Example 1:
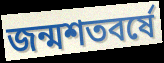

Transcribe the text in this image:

জন্মশতবর্ষে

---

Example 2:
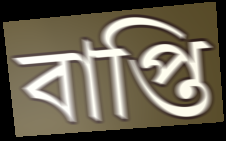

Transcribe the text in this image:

বাপ্তি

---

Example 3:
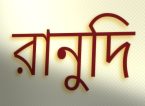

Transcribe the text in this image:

রানুদি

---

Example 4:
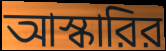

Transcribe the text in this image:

আস্কারির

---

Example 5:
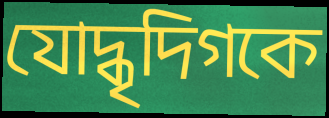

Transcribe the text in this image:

যোদ্ধৃদিগকে